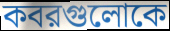
কবরগুলোকে